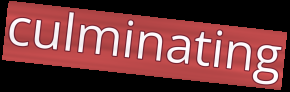
culminating